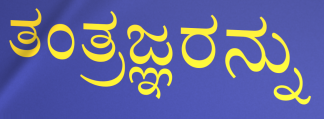
ತಂತ್ರಜ್ಞರನ್ನು